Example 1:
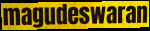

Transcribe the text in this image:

magudeswaran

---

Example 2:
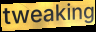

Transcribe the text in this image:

tweaking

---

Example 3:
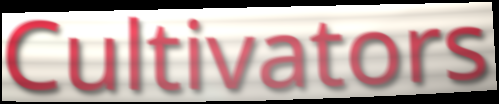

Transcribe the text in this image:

Cultivators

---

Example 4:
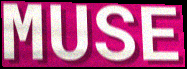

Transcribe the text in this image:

MUSE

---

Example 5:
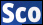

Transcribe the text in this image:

Sco